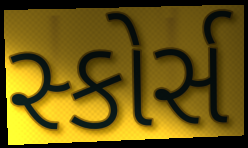
સ્કોર્સ